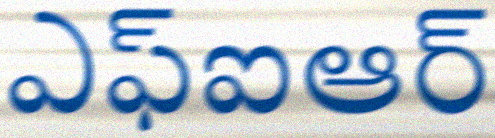
ఎఫ్ఐఆర్